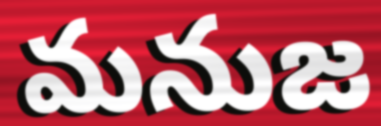
మనుజ